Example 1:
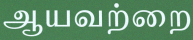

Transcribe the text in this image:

ஆயவற்றை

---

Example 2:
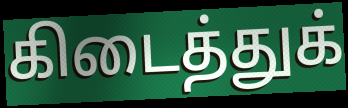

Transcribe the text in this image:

கிடைத்துக்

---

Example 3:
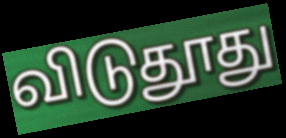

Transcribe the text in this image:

விடுதூது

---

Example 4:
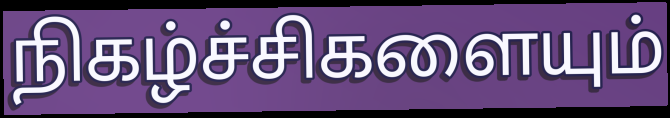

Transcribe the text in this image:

நிகழ்ச்சிகளையும்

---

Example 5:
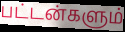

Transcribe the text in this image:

பட்டன்களும்